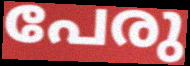
പേരു